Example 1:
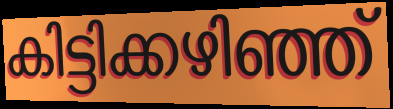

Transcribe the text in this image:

കിട്ടിക്കഴിഞ്ഞ്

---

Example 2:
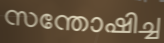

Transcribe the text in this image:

സന്തോഷിച്ച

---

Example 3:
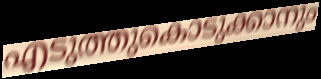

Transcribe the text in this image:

എടുത്തുകൊടുക്കാനും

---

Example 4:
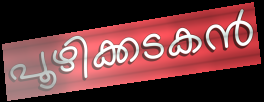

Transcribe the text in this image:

പൂഴിക്കടകൻ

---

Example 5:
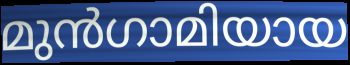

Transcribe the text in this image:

മുൻഗാമിയായ